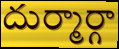
దుర్మార్గా